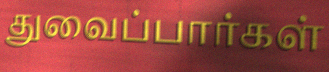
துவைப்பார்கள்